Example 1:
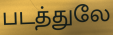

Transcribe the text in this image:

படத்துலே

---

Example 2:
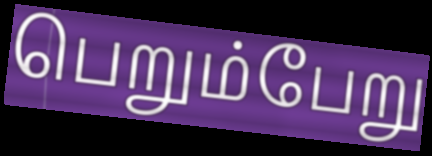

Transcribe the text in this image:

பெறும்பேறு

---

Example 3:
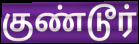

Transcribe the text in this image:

குண்டூர்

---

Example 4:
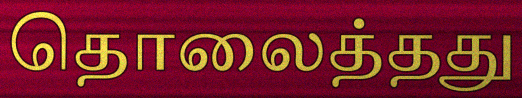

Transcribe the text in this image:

தொலைத்தது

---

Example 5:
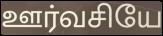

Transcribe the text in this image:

ஊர்வசியே